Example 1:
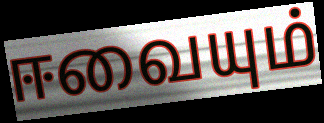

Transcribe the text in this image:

ஈவையும்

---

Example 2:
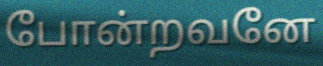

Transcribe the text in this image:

போன்றவனே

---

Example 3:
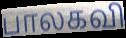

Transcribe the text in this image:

பாலகவி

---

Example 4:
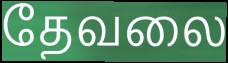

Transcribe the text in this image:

தேவலை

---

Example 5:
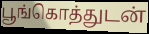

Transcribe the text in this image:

பூங்கொத்துடன்